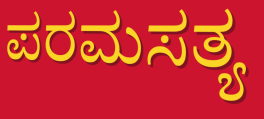
ಪರಮಸತ್ಯ